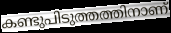
കണ്ടുപിടുത്തത്തിനാണ്